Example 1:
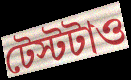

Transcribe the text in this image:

টেস্টটাও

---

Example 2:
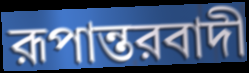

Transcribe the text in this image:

রূপান্তরবাদী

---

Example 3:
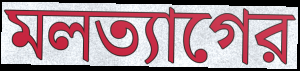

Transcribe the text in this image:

মলত্যাগের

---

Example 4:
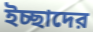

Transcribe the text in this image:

ইচ্ছাদের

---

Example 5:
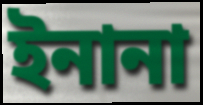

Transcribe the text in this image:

ইনানা